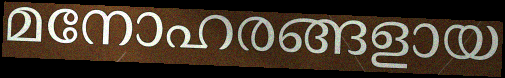
മനോഹരങ്ങളായ